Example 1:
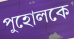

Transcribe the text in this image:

পুহোলকে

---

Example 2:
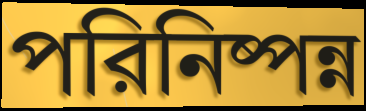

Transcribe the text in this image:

পরিনিষ্পন্ন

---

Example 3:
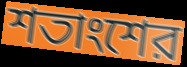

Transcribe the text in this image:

শতাংশের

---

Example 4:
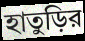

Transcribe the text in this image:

হাতুড়ির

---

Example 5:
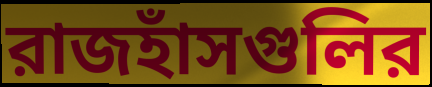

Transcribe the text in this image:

রাজহাঁসগুলির